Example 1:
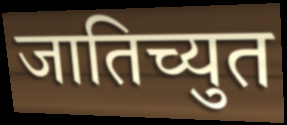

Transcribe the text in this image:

जातिच्युत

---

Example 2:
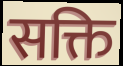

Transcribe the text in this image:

सक्ति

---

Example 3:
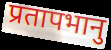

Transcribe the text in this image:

प्रतापभानु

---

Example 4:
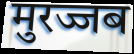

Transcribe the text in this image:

मुरज्जब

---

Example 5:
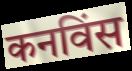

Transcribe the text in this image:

कनविंस